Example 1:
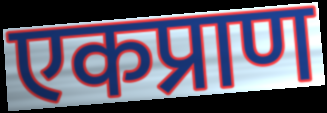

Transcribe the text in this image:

एकप्राण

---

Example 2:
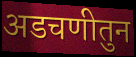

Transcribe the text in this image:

अडचणीतुन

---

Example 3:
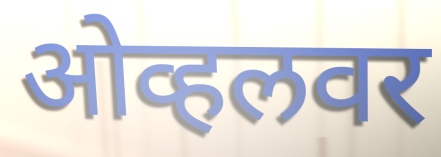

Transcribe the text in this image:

ओव्हलवर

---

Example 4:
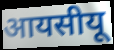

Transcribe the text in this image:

आयसीयू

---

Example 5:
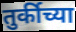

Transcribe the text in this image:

तुर्कीच्या